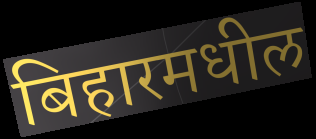
बिहारमधील